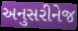
અનુસરીનેજ